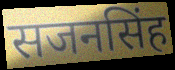
सजनसिंह